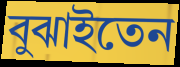
বুঝাইতেন